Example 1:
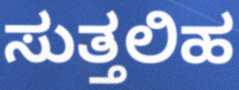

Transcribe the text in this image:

ಸುತ್ತಲಿಹ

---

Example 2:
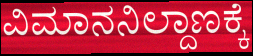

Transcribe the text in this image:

ವಿಮಾನನಿಲ್ದಾಣಕ್ಕೆ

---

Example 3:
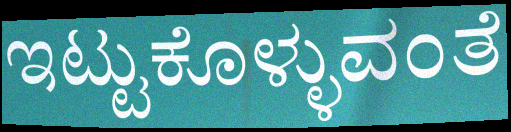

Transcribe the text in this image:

ಇಟ್ಟುಕೊಳ್ಳುವಂತೆ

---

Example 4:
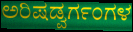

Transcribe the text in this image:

ಅರಿಷಡ್ವರ್ಗಂಗಳ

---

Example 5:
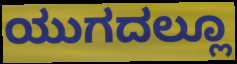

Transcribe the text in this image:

ಯುಗದಲ್ಲೂ